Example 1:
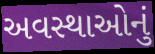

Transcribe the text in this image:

અવસ્થાઓનું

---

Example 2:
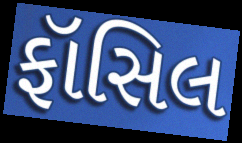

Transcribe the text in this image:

ફૉસિલ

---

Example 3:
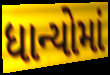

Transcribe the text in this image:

ધાન્યોમાં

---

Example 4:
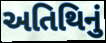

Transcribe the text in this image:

અતિથિનું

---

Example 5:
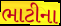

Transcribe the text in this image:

ભાટીના